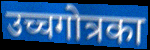
उच्चगोत्रका